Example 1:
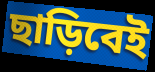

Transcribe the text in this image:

ছাড়িবেই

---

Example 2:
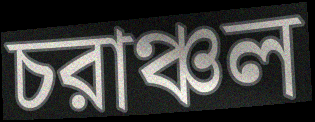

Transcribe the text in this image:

চরাঞ্চল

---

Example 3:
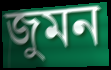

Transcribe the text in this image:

জুমন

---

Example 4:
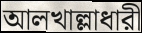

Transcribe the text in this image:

আলখাল্লাধারী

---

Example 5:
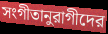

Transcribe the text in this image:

সংগীতানুরাগীদের